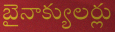
బైనాక్యులర్లు